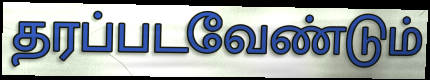
தரப்படவேண்டும்